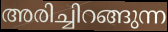
അരിച്ചിറങ്ങുന്ന